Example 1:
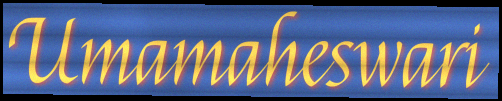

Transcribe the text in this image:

Umamaheswari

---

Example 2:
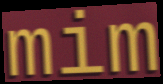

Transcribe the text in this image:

mim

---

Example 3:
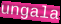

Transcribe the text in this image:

ungala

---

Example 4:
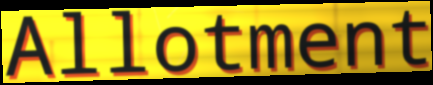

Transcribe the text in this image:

Allotment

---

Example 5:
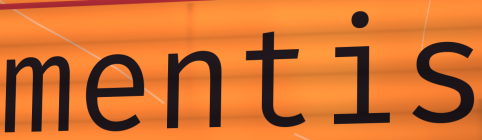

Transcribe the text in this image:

mentis